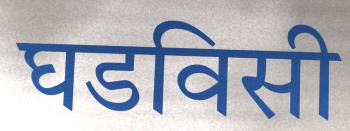
घडविसी